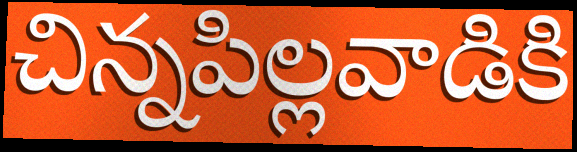
చిన్నపిల్లవాడికి